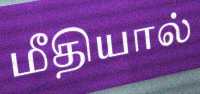
மீதியால்